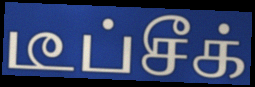
டீப்சீக்